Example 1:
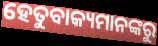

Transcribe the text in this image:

ହେତୁବାକ୍ୟମାନଙ୍କରୁ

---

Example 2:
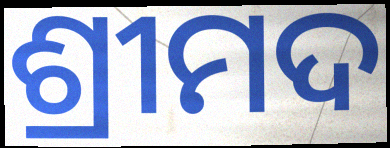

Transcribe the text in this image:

ଶ୍ରୀମଦ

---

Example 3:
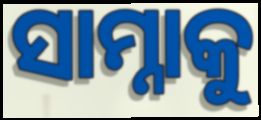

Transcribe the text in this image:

ସାମ୍ନାକୁ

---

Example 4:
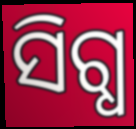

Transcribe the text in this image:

ସିଗ୍ଧ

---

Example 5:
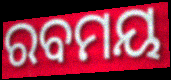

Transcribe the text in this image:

ରବମୟ